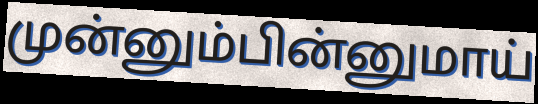
முன்னும்பின்னுமாய்